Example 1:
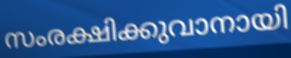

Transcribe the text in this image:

സംരക്ഷിക്കുവാനായി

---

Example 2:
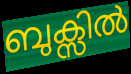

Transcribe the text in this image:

ബുക്സിൽ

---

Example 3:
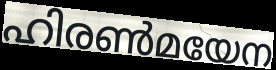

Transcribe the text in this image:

ഹിരൺമയേന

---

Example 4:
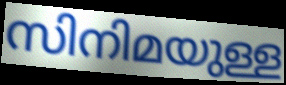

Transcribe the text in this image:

സിനിമയുള്ള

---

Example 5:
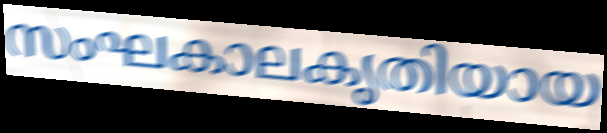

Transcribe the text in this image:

സംഘകാലകൃതിയായ